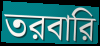
তরবারি